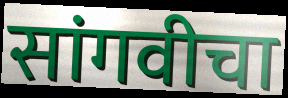
सांगवीचा